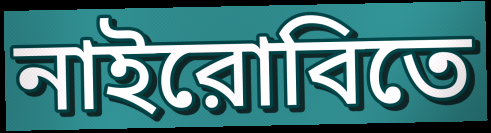
নাইরোবিতে